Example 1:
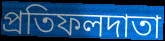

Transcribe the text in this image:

প্রতিফলদাতা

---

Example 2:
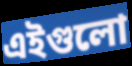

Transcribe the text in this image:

এইগুলো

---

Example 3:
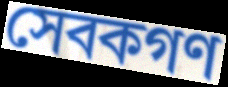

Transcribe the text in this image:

সেবকগণ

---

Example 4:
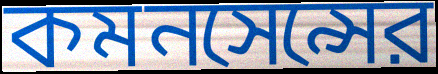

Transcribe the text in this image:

কমনসেন্সের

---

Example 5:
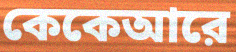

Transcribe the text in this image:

কেকেআরে